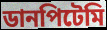
ডানপিটেমি